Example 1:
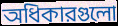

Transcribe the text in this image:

অধিকারগুলো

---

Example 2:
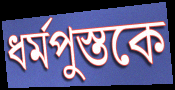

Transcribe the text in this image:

ধর্মপুস্তকে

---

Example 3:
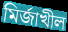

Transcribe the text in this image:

মির্জাখীল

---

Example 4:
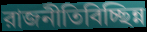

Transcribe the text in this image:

রাজনীতিবিচ্ছিন্ন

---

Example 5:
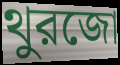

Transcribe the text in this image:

থুরজো